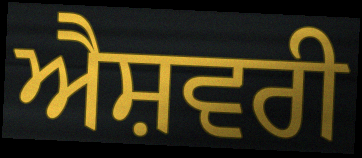
ਐਸ਼ਵਰੀ